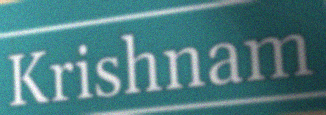
Krishnam